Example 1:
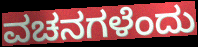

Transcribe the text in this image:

ವಚನಗಳೆಂದು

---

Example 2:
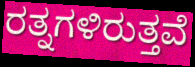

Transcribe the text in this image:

ರತ್ನಗಳಿರುತ್ತವೆ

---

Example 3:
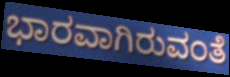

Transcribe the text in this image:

ಭಾರವಾಗಿರುವಂತೆ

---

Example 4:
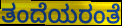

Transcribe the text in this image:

ತಂದೆಯರಂತೆ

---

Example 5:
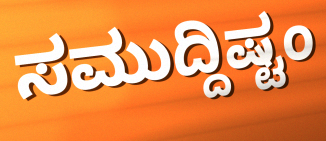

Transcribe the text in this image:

ಸಮುದ್ದಿಷ್ಟಂ